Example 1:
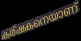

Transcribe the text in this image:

കര്ഷകനെയാണ്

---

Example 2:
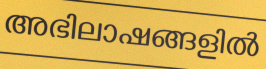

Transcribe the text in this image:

അഭിലാഷങ്ങളിൽ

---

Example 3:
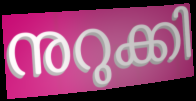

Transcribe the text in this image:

നുറുക്കി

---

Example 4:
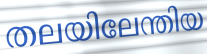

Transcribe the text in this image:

തലയിലേന്തിയ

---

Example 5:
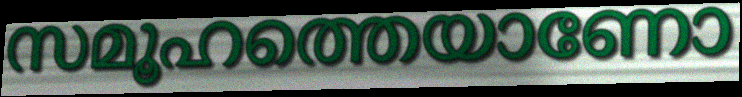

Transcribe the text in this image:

സമൂഹത്തെയാണോ